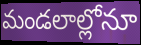
మండలాల్లోనూ